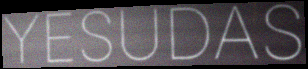
YESUDAS